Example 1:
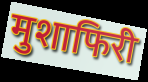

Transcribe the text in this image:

मुशाफिरी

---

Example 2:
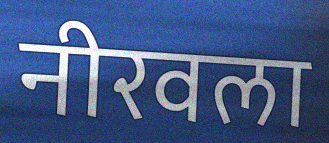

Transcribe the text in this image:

नीरवला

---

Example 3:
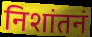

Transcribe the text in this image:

निशांतनं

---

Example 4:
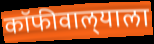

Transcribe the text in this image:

कॉफीवाल्याला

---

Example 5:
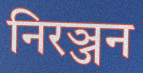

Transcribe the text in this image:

निरञ्जन